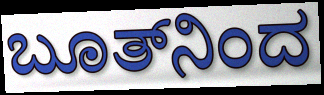
ಬೂತ್‌ನಿಂದ